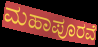
ಮಹಾಪೂರವೆ